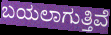
ಬಯಲಾಗುತ್ತಿವೆ